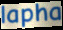
lapha